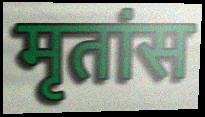
मृतांस